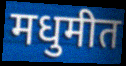
मधुमीत